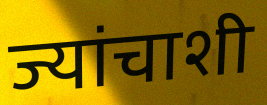
ज्यांचाशी